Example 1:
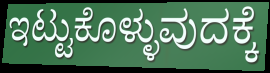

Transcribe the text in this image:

ಇಟ್ಟುಕೊಳ್ಳುವುದಕ್ಕೆ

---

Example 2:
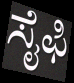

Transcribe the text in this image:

ಸೈಫಿ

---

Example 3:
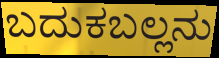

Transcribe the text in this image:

ಬದುಕಬಲ್ಲನು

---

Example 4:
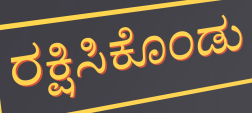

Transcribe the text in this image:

ರಕ್ಷಿಸಿಕೊಂಡು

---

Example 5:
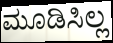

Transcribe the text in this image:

ಮೂಡಿಸಿಲ್ಲ